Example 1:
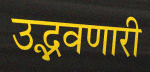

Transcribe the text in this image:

उद्भवणारी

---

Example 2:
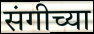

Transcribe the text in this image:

संगीच्या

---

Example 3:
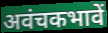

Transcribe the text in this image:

अवंचकभावें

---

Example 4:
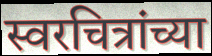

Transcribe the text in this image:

स्वरचित्रांच्या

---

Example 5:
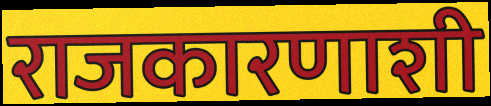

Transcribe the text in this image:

राजकारणाशी